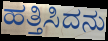
ಹತ್ತಿಸಿದನು